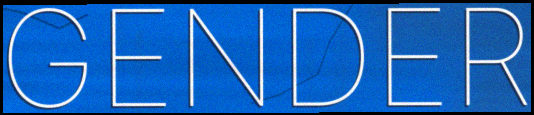
GENDER